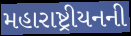
મહારાષ્ટ્રીયનની